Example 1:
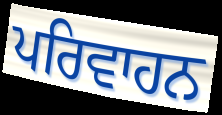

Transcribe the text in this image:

ਪਰਿਵਾਹਨ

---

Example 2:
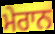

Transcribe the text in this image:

ਮੇਰਾਨ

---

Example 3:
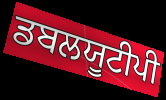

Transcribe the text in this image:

ਡਬਲਯੂਟੀਪੀ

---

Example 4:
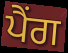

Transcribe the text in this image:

ਪੈਂਗ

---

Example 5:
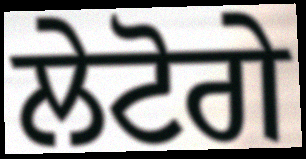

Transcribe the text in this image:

ਲੇਟੋਗੇ